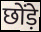
छोंड़े